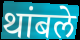
थांबले